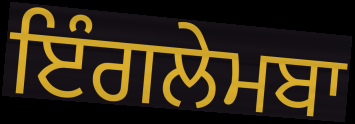
ਇੰਗਲੇਮਬਾ